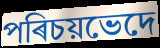
পৰিচয়ভেদে